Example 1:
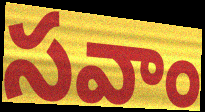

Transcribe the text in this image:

సవాం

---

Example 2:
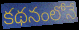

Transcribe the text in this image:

కథనంలోనే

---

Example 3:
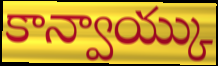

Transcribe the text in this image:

కాన్వాయ్కు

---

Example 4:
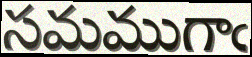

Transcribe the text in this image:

సమముగాఁ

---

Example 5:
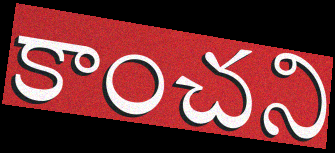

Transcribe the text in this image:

కాంచని